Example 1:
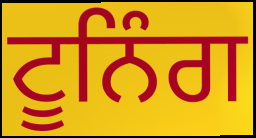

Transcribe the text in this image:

ਟੂਨਿੰਗ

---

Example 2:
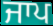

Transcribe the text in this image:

ਜਾਪ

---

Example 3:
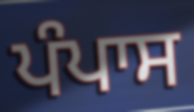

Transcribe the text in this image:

ਪੰਪਾਸ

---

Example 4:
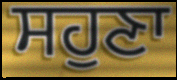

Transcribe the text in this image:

ਸਹੁਣਾ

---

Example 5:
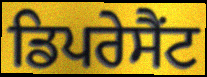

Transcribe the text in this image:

ਡਿਪਰੇਸੈਂਟ